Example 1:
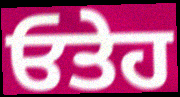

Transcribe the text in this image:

ਓਤੇਹ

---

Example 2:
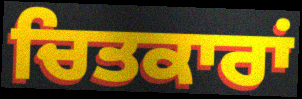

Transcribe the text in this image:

ਚਿਤਕਾਰਾਂ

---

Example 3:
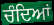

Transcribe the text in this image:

ਚੰਦਿਆਂ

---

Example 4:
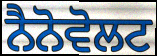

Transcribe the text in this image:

ਨੈਨੋਵੋਲਟ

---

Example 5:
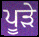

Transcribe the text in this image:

ਪੂੜੇ